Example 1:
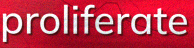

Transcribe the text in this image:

proliferate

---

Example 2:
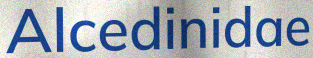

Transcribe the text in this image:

Alcedinidae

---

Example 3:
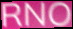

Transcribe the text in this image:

RNO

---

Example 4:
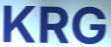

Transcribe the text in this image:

KRG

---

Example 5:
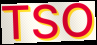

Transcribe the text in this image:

TSO